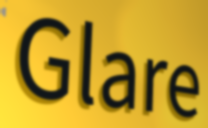
Glare